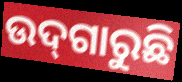
ଉଦ୍‌ଗାରୁଛି